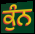
ਕੁੰਨ